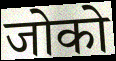
जोको